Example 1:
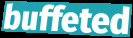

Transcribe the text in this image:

buffeted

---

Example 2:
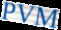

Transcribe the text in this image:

PVM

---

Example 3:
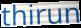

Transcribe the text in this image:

thirun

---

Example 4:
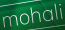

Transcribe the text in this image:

mohali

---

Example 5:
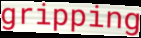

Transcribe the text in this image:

gripping